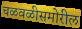
चळवळीसमोरील